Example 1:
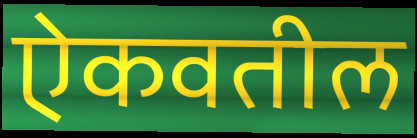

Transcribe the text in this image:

ऐकवतील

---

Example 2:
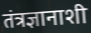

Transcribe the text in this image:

तंत्रज्ञानाशी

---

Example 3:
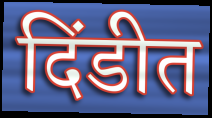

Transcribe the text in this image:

दिंडीत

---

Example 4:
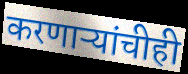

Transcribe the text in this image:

करणाऱ्यांचीही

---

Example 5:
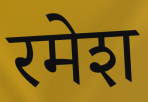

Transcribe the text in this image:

रमेश